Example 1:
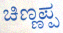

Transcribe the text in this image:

ಚಿಣ್ಣಪ್ಪ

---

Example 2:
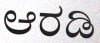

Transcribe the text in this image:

ಆರಡಿ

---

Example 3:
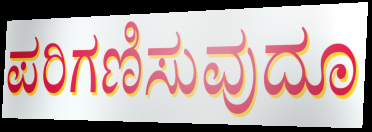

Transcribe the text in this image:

ಪರಿಗಣಿಸುವುದೂ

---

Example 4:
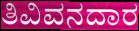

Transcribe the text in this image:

ತಿವಿವನದಾರ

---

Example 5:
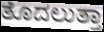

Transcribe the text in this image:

ತೊದಲುತ್ತಾ